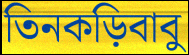
তিনকড়িবাবু